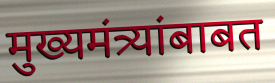
मुख्यमंत्र्यांबाबत